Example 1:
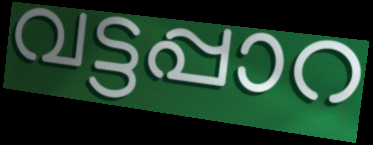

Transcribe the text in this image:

വട്ടപ്പാറ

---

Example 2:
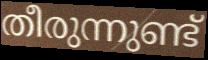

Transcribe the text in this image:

തീരുന്നുണ്ട്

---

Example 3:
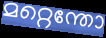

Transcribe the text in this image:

മറ്റെന്തോ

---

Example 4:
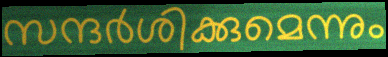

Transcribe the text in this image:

സന്ദർശിക്കുമെന്നും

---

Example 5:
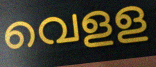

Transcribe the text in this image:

വെളള